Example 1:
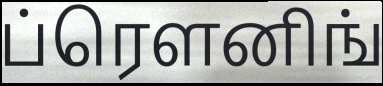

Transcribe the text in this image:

ப்ரௌனிங்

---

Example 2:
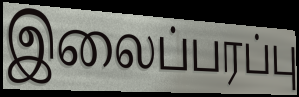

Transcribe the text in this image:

இலைப்பரப்பு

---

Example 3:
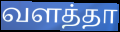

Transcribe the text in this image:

வளத்தா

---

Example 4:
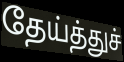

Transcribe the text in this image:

தேய்த்துச்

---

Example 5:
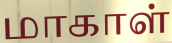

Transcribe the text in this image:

மாகாள்